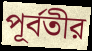
পূর্বতীর